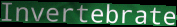
Invertebrate